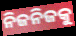
ନିଜନିଜକୁ